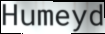
Humeyd